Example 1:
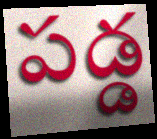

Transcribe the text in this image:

పడ్డ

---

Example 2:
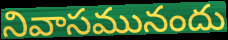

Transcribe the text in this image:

నివాసమునందు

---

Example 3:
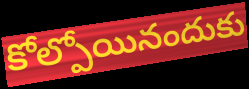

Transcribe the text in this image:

కోల్పోయినందుకు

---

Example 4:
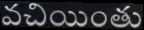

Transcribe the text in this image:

వచియింతు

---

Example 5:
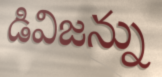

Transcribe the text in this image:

డివిజన్ను